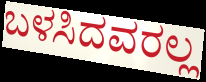
ಬಳಸಿದವರಲ್ಲ